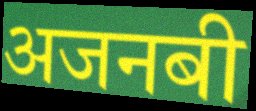
अजनबी